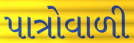
પાત્રોવાળી